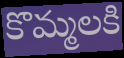
కొమ్మలకి